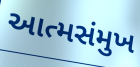
આત્મસંમુખ